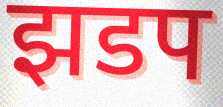
झडप